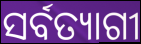
ସର୍ବତ୍ୟାଗୀ